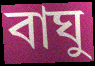
বাঘু